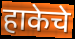
हाकेचे